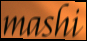
mashi